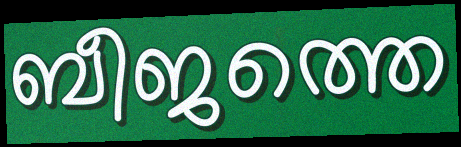
ബീജത്തെ